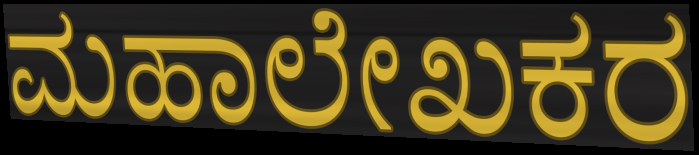
ಮಹಾಲೇಖಕರ